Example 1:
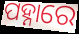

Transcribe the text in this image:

ପହ୍ନାରେ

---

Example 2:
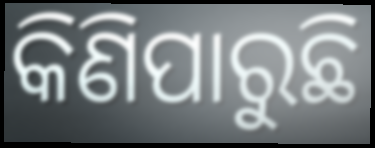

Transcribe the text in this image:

କିଣିପାରୁଛି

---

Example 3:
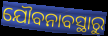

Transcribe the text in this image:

ଯୌବନାବସ୍ଥାରୁ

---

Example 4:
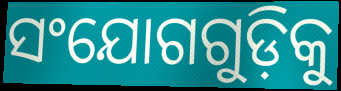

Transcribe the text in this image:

ସଂଯୋଗଗୁଡ଼ିକୁ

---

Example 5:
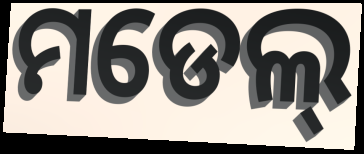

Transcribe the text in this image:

ମଡେଲ୍